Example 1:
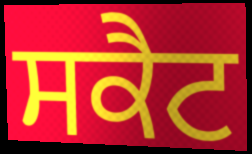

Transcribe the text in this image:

ਸਕੈਟ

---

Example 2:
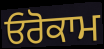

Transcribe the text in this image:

ਓਰੋਕਾਮ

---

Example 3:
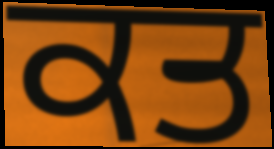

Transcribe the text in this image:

ਕਤ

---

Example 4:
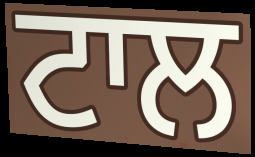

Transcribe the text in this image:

ਟਾਲ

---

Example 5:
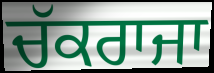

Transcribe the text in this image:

ਚੱਕਰਾਜਾ